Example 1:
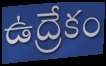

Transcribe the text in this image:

ఉద్రేకం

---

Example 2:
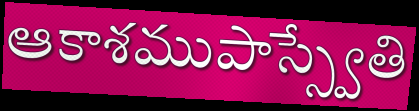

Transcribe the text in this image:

ఆకాశముపాస్స్వేతి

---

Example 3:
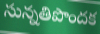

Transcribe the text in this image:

సున్నతిపొందక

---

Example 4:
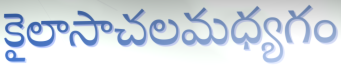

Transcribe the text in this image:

కైలాసాచలమధ్యగం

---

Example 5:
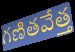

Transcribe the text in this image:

గణితవేత్త